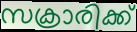
സക്രാരിക്ക്